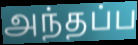
அந்தப்ப